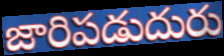
జారిపడుదురు